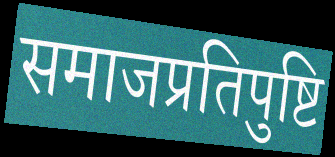
समाजप्रतिपुष्टि